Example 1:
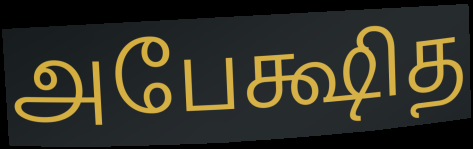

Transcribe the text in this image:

அபேக்ஷித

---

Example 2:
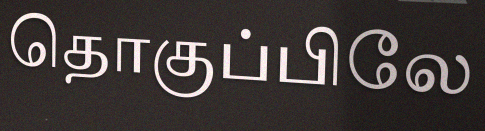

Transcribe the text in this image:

தொகுப்பிலே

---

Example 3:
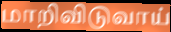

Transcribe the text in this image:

மாறிவிடுவாய்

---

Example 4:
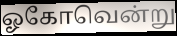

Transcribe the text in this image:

ஓகோவென்று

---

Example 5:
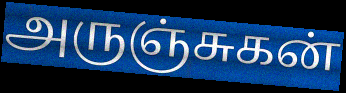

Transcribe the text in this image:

அருஞ்சுகன்